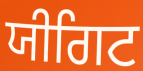
ਯੀਗਿਟ